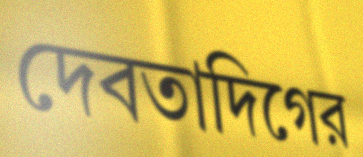
দেবতাদিগের